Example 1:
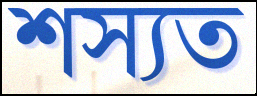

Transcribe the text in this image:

শস্যত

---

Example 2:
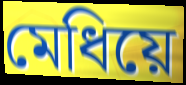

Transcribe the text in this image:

মেধিয়ে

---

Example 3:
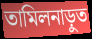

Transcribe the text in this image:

তামিলনাড়ুত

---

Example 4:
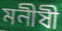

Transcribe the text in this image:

মনীষী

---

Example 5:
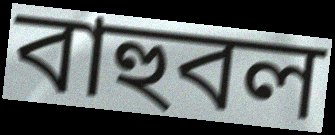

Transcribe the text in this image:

বাহুবল